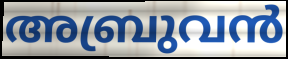
അബ്രുവൻ